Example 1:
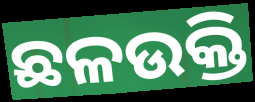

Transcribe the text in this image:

ଛଳଉକ୍ତି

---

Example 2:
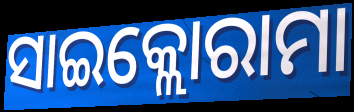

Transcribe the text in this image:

ସାଇକ୍ଲୋରାମା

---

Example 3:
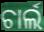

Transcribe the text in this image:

ଚାର୍ଲ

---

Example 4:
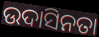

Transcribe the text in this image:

ଉଦାସିନତା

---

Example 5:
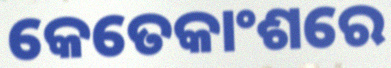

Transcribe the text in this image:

କେତେକାଂଶରେ